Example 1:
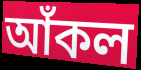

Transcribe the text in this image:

আঁকল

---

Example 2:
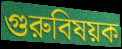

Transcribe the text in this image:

গুরুবিষয়ক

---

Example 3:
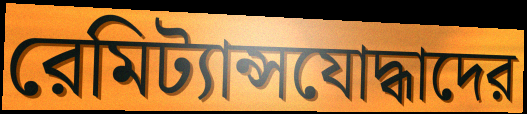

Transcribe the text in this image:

রেমিট্যান্সযোদ্ধাদের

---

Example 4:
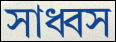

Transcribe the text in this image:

সাধ্বস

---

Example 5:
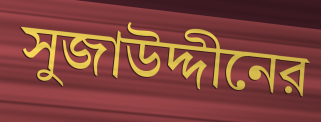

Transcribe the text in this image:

সুজাউদ্দীনের